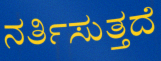
ನರ್ತಿಸುತ್ತದೆ